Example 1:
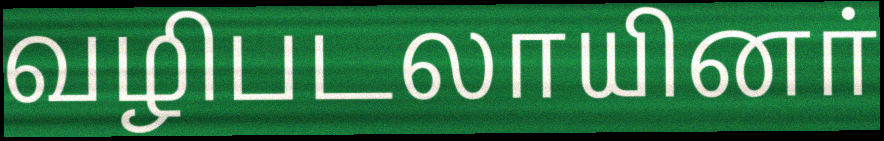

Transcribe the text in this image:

வழிபடலாயினர்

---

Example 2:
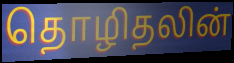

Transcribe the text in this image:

தொழிதலின்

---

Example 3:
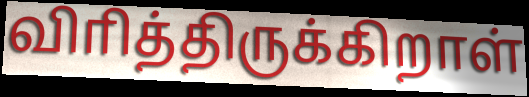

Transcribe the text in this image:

விரித்திருக்கிறாள்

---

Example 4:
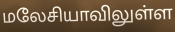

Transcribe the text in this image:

மலேசியாவிலுள்ள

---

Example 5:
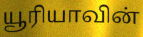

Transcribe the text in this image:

யூரியாவின்